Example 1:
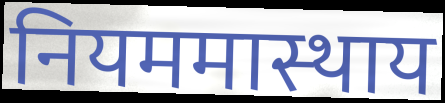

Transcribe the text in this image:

नियममास्थाय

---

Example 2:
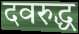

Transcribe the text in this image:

दवरुद्ध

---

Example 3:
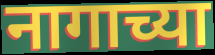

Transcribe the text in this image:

नागाच्या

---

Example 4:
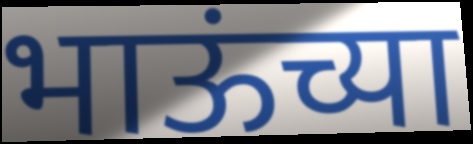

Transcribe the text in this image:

भाऊंच्या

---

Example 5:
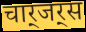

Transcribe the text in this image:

चार्जर्स